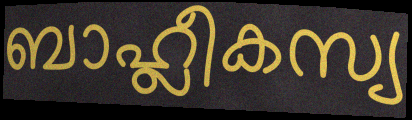
ബാഹ്ലീകസ്യ